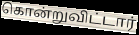
கொன்றுவிட்டார்